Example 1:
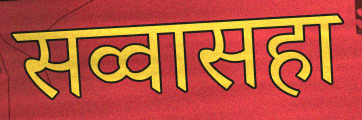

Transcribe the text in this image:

सव्वासहा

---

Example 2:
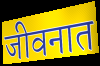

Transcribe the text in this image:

जीवनात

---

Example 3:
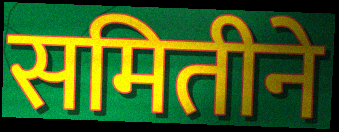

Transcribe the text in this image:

समितीने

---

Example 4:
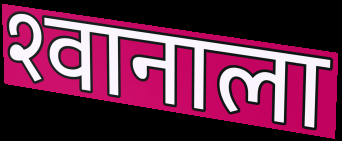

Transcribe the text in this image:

श्वानाला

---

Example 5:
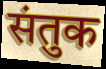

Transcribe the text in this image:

संतुक